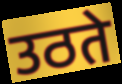
उठते